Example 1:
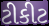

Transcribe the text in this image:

ટીકીટ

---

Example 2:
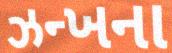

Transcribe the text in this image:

ઝન્ખના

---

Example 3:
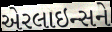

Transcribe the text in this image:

એરલાઇન્સને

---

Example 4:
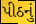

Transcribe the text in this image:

પીઠનું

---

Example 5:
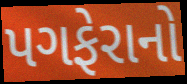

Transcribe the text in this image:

પગફેરાનો